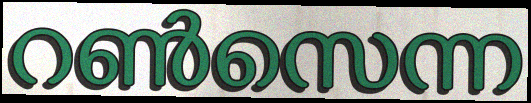
റൺസെന്ന